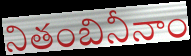
నితంబినీనాం